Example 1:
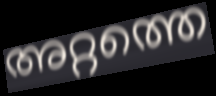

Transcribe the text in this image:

അറ്റത്തെ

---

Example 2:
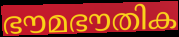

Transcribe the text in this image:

ഭൗമഭൗതിക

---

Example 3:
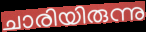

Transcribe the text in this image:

ചാരിയിരുന്നു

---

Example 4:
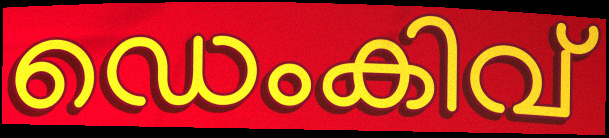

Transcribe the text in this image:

ഡെംകിവ്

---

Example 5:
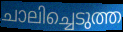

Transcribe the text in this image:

ചാലിച്ചെടുത്ത